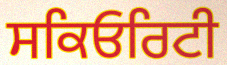
ਸਕਿਓਰਿਟੀ